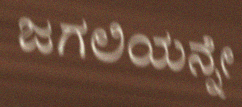
ಜಗಲಿಯನ್ನೇ